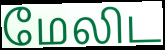
மேலிட